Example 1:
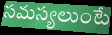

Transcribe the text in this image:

సమస్యలుంటే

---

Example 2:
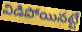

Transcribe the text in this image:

విడిపోయినట్టే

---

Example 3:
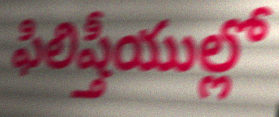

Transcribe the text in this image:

ఫిలిష్తీయుల్లో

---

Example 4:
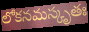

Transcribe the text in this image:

లోకనమస్కృతః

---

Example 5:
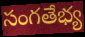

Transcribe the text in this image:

సంగతేభ్య